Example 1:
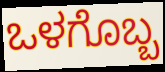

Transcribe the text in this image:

ಒಳಗೊಬ್ಬ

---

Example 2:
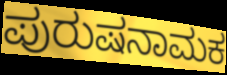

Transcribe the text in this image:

ಪುರುಷನಾಮಕ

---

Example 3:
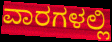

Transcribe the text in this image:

ವಾರಗಳಲ್ಲಿ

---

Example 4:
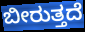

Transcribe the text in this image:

ಬೀರುತ್ತದೆ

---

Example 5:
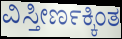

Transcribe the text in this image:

ವಿಸ್ತೀರ್ಣಕ್ಕಿಂತ